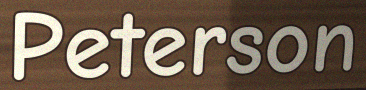
Peterson